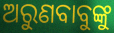
ଅରୁଣବାବୁଙ୍କୁ